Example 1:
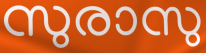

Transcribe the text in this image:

സുരാസു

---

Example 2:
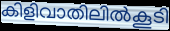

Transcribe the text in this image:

കിളിവാതിലിൽകൂടി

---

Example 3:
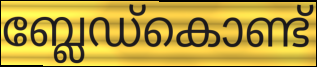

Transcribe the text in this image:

ബ്ലേഡ്കൊണ്ട്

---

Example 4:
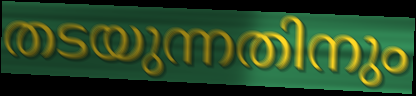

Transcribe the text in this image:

തടയുന്നതിനും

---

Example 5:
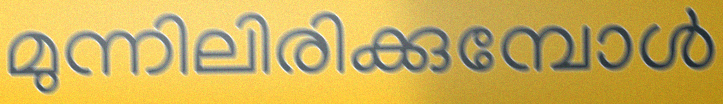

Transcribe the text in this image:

മുന്നിലിരിക്കുമ്പോൾ